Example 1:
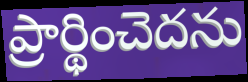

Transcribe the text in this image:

ప్రార్థించెదను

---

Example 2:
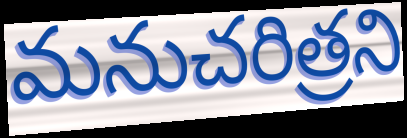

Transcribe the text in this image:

మనుచరిత్రని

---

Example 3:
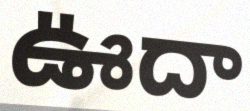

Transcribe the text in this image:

ఊదా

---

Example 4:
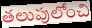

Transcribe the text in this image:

తలుపులోంచి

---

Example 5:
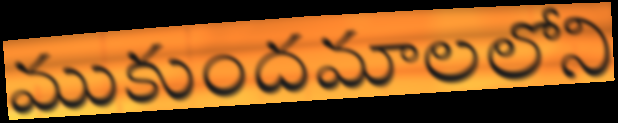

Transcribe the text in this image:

ముకుందమాలలోని